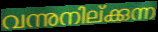
വന്നുനില്ക്കുന്ന